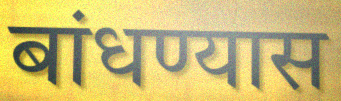
बांधण्यास